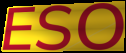
ESO